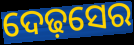
ଦେଢ଼ସେର